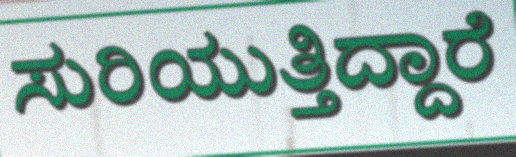
ಸುರಿಯುತ್ತಿದ್ದಾರೆ